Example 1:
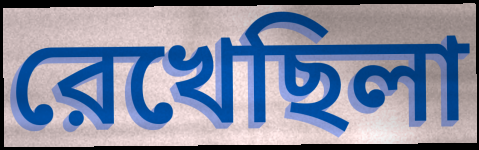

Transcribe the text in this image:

রেখেছিলা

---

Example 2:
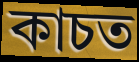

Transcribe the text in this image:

কাচত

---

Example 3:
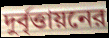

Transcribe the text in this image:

দুর্বৃত্তায়নের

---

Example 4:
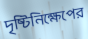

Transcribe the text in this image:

দৃষ্টিনিক্ষেপের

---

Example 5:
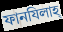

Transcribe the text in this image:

ফানযিলাহ্